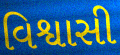
વિશ્વાસી